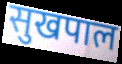
सुखपाल